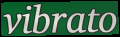
vibrato